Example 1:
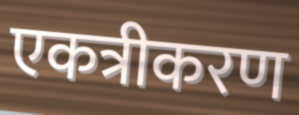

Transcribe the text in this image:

एकत्रीकरण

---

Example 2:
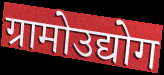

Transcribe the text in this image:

ग्रामोउद्योग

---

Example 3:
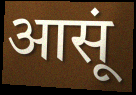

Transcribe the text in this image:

आसूं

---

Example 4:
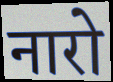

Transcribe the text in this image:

नारो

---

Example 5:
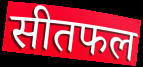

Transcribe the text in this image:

सीतफल